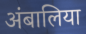
अंबालिया